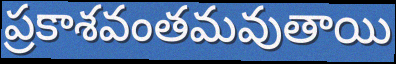
ప్రకాశవంతమవుతాయి